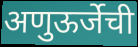
अणुऊर्जेची